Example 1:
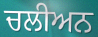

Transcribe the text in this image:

ਚਲੀਅਨ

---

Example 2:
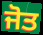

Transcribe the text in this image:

ਜੋਤ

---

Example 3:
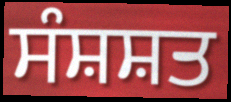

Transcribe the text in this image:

ਸੰਸ਼ਸ਼ਤ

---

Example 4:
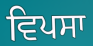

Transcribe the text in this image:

ਵਿਪਸਾ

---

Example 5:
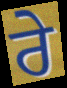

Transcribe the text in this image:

ਰੇ